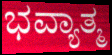
ಭವ್ಯಾತ್ಮ